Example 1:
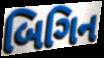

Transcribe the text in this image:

બિગિન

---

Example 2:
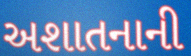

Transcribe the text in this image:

અશાતનાની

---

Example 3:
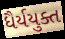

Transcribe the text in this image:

ધૈર્યયુક્ત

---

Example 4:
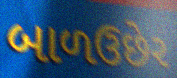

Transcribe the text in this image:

બાળઉછેર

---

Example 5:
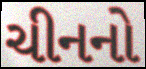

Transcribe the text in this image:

ચીનનો